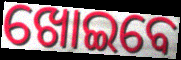
ଖୋଇବେ